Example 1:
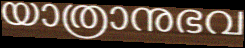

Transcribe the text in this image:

യാത്രാനുഭവ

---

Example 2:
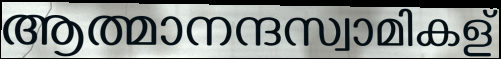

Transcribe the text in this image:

ആത്മാനന്ദസ്വാമികള്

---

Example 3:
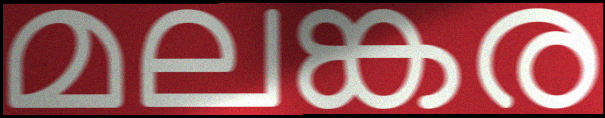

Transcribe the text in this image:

മലങ്കര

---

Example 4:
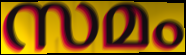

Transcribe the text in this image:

സമം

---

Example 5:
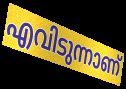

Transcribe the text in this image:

എവിടുന്നാണ്